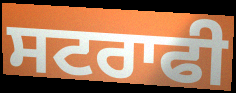
ਸਟਰਾਫੀ